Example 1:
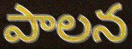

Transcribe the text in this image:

పాలన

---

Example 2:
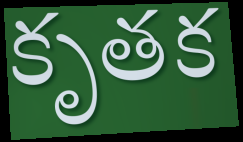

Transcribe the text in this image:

కృతక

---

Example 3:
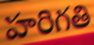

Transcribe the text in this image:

హరిగతి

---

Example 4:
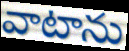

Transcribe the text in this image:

వాటాను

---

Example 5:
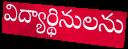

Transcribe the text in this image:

విద్యార్థినులను